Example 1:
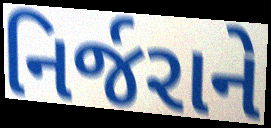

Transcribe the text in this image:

નિર્જરાને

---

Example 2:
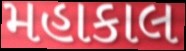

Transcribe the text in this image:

મહાકાલ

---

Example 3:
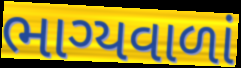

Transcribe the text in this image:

ભાગ્યવાળાં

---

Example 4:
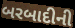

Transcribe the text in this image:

બરબાદીની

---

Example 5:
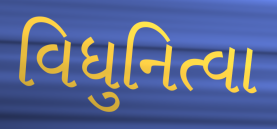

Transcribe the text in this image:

વિધુનિત્વા